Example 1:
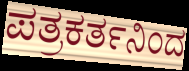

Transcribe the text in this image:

ಪತ್ರಕರ್ತನಿಂದ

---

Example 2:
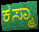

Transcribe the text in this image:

ಕಸ್ಮಾ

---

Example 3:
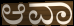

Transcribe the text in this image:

ಆವಾ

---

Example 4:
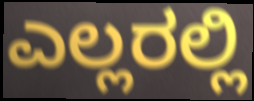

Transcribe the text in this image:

ಎಲ್ಲರಲ್ಲಿ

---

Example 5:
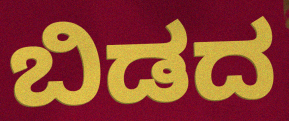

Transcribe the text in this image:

ಬಿಡದ